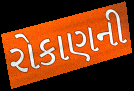
રોકાણની